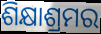
ଶିକ୍ଷାଶ୍ରମର